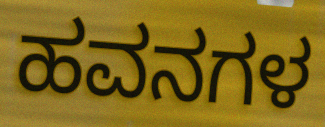
ಹವನಗಳ